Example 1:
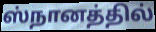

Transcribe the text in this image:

ஸ்நானத்தில்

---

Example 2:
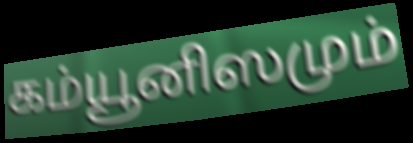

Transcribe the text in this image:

கம்யூனிஸமும்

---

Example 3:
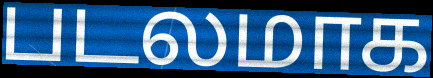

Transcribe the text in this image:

படலமாக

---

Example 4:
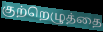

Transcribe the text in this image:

குற்றெழுத்தை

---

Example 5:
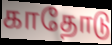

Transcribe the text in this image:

காதோடு